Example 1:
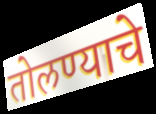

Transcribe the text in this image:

तोलण्याचे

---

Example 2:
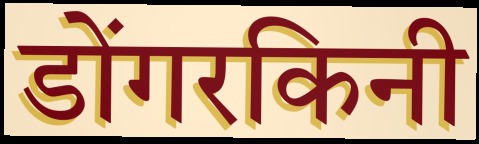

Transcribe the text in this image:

डोंगरकिनी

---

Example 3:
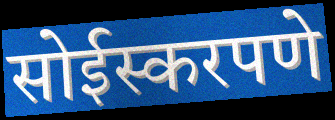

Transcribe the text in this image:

सोईस्करपणे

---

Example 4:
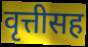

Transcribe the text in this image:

वृत्तीसह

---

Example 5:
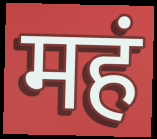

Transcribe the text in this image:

महं